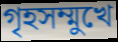
গৃহসম্মুখে